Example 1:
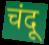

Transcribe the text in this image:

चंदू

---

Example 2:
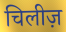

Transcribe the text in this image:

चिलीज़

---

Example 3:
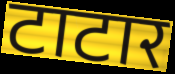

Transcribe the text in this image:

टाटार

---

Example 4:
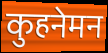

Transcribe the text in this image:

कुहनेमन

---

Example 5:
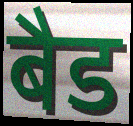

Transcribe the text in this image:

बैड